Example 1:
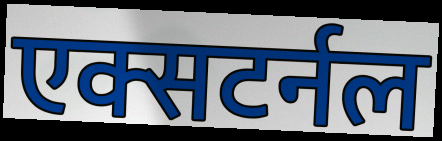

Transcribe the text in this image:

एक्सटर्नल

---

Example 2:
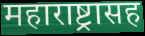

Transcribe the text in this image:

महाराष्ट्रासह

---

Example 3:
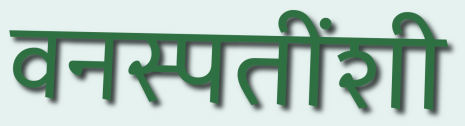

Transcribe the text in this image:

वनस्पतींशी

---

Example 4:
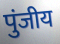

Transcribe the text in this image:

पुंजीय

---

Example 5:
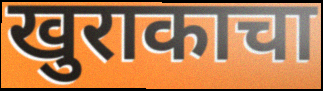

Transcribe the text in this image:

खुराकाचा